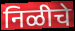
निळीचे